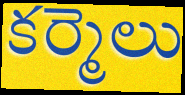
కర్మెలు